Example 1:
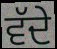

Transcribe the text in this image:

ਵੱਦੇ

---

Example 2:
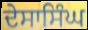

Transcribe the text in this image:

ਦੇਸਾਸਿੰਘ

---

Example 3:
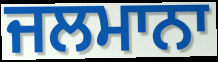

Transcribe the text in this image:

ਜਲਮਾਨਾ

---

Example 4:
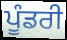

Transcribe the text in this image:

ਪੂੰਡਰੀ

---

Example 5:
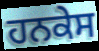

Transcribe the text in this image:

ਹਨਕੇਸ